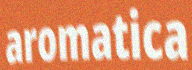
aromatica